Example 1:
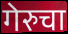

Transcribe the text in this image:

गेरुचा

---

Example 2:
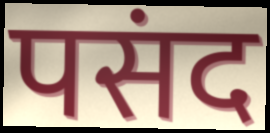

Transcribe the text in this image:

पसंद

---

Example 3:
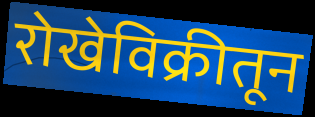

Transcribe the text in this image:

रोखेविक्रीतून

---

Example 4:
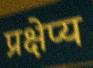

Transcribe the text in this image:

प्रक्षेप्य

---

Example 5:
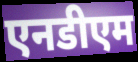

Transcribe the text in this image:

एनडीएम